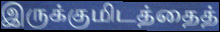
இருக்குமிடத்தைத்